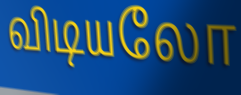
விடியலோ